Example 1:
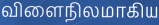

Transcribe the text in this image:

விளைநிலமாகிய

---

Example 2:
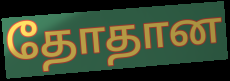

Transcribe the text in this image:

தோதான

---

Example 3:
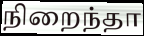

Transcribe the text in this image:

நிறைந்தா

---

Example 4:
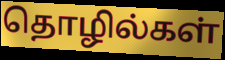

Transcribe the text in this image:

தொழில்கள்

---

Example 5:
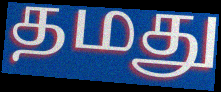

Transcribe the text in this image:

தமது